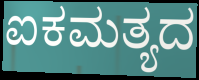
ಐಕಮತ್ಯದ